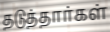
தடுத்தார்கள்